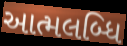
આત્મલબ્ધિ